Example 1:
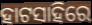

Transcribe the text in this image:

ହାଟସାହିରେ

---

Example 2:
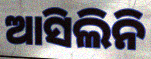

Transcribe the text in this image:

ଆସିଲିନି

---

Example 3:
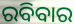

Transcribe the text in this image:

ରବିବାର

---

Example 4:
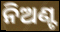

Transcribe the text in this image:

ନିଅଣ୍ଟ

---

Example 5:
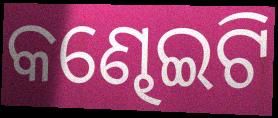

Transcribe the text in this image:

କଣ୍ଢେଇଟି